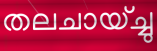
തലചായ്ച്ചു